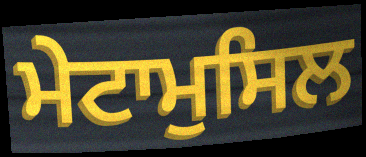
ਮੇਟਾਮੁਸਿਲ